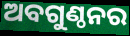
ଅବଗୁଣ୍ଠନର